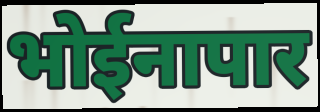
भोईनापार